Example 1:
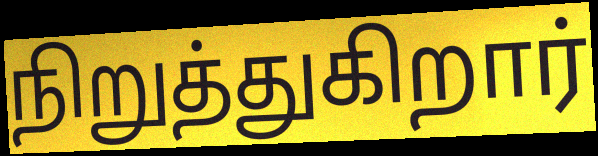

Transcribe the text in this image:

நிறுத்துகிறார்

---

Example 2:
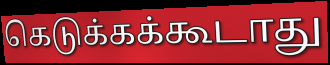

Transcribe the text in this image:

கெடுக்கக்கூடாது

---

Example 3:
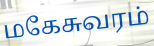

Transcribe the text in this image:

மகேசுவரம்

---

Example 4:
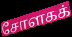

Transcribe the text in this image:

சோளகக்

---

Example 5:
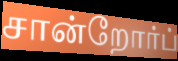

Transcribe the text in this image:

சான்றோர்ப்